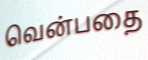
வென்பதை